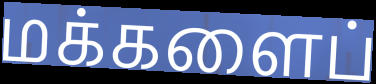
மக்களைப்